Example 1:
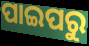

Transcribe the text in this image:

ପାଇପରୁ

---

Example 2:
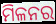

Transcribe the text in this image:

ମିଳନର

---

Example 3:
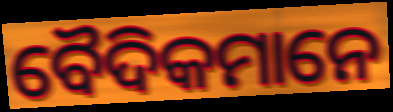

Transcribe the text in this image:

ବୈଦିକମାନେ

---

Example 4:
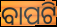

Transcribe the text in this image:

ବାପଟି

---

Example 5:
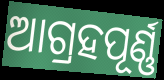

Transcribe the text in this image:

ଆଗ୍ରହପୂର୍ଣ୍ଣ